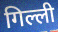
गिल्ली